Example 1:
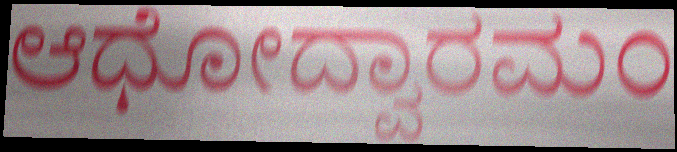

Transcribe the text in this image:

ಆಧೋದ್ವಾರಮಂ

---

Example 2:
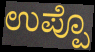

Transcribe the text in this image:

ಉಪ್ಪೊ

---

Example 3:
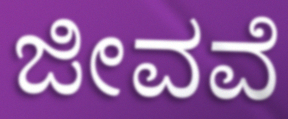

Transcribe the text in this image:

ಜೀವವೆ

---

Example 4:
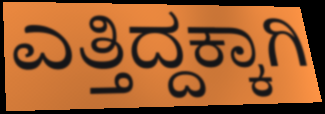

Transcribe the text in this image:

ಎತ್ತಿದ್ದಕ್ಕಾಗಿ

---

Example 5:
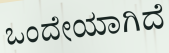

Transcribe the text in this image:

ಒಂದೇಯಾಗಿದೆ